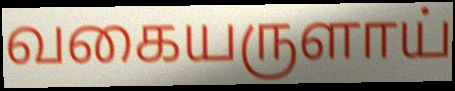
வகையருளாய்